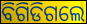
ବିଗିଡିଗଲେ